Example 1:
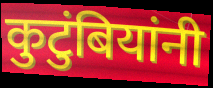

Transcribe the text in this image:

कुटुंबियांनी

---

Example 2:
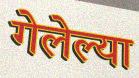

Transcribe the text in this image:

गेलेल्या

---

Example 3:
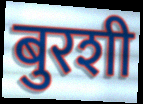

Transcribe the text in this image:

बुरशी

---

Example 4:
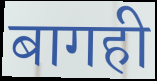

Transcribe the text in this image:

बागही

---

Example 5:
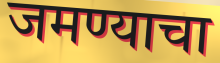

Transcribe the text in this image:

जमण्याचा